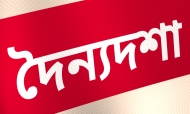
দৈন্যদশা